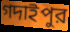
গদাইপুর